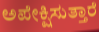
ಅಪೇಕ್ಷಿಸುತ್ತಾರೆ